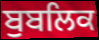
ਬੁਬਲਿਕ